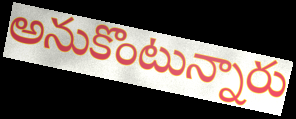
అనుకొంటున్నారు